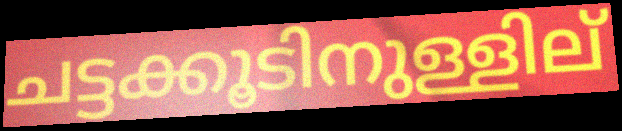
ചട്ടക്കൂടിനുള്ളില്